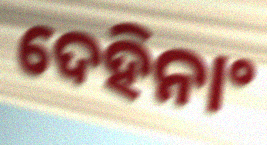
ଦେହିନାଂ